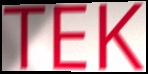
TEK